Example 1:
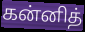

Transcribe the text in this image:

கன்னித்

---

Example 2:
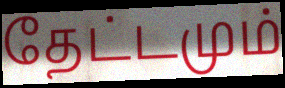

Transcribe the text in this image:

தேட்டமும்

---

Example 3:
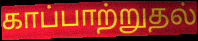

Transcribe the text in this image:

காப்பாற்றுதல்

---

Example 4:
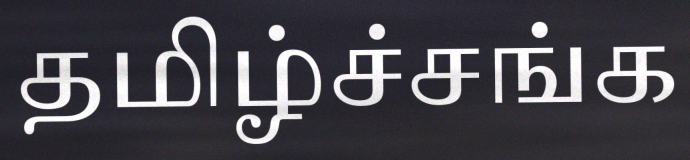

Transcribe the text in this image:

தமிழ்ச்சங்க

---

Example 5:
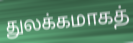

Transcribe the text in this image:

துலக்கமாகத்